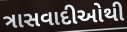
ત્રાસવાદીઓથી